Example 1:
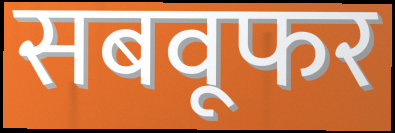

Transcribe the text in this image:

सबवूफर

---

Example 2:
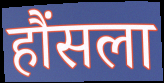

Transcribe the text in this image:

हौंसला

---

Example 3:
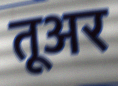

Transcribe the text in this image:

तूअर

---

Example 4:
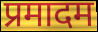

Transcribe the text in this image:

प्रमादम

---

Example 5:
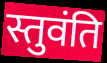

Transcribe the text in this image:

स्तुवंति